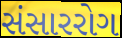
સંસારરોગ